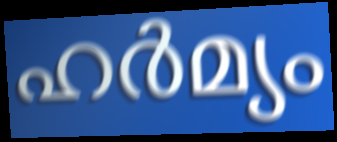
ഹർമ്യം